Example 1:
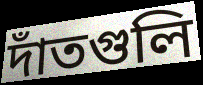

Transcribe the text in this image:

দাঁতগুলি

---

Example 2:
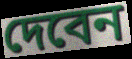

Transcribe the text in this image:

দেবেন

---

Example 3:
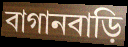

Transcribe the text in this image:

বাগানবাড়ি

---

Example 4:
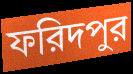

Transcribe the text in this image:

ফরিদপুর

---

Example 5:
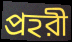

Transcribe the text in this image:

প্রহরী